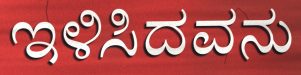
ಇಳಿಸಿದವನು